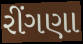
રીંગણા